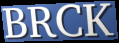
BRCK